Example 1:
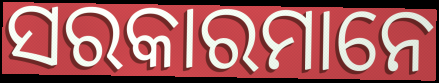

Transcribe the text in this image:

ସରକାରମାନେ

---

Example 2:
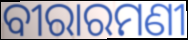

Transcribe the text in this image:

ବୀରାରମଣୀ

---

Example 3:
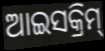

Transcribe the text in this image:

ଆଇସକ୍ରିମ୍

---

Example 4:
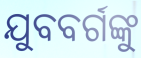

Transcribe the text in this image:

ଯୁବବର୍ଗଙ୍କୁ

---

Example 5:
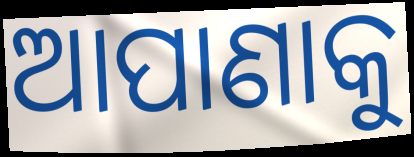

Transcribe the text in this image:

ଆପାଣାକୁ